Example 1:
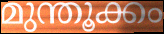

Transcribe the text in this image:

മുന്തൂക്കം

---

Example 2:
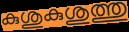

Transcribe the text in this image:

കുശുകുശുത്തു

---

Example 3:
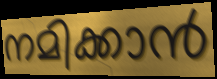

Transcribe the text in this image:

നമിക്കാൻ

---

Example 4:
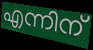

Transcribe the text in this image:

എന്നിന്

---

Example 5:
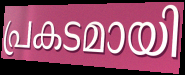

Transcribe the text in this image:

പ്രകടമായി